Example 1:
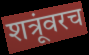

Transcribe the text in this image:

शत्रूंवरच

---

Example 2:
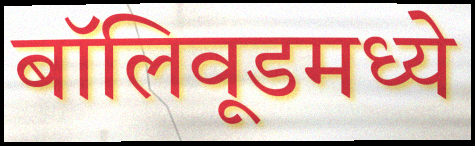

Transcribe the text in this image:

बॉलिवूडमध्ये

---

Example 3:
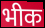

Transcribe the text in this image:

भीक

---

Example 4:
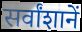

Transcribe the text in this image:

सर्वांशानें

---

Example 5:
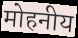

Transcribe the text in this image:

मोहनीय